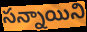
సన్నాయిని